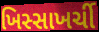
ખિસ્સાખર્ચી